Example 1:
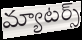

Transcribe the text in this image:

మ్యాటర్స్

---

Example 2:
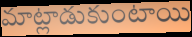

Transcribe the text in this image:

మాట్లాడుకుంటాయి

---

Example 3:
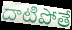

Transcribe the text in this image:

దాటిపోతే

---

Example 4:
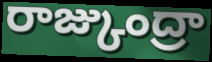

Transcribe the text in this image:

రాజ్కుంద్రా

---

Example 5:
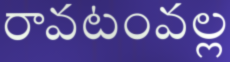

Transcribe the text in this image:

రావటంవల్ల